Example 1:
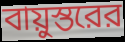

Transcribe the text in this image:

বায়ুস্তরের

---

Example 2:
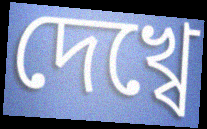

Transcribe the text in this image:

দেখ্বে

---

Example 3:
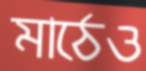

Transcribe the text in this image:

মাঠেও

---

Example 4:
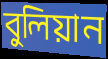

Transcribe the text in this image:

বুলিয়ান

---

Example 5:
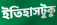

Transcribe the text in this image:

ইতিহাসটুকু